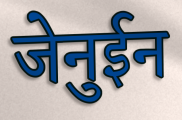
जेनुईन